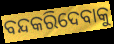
ବନ୍ଦକରିଦେବାକୁ